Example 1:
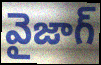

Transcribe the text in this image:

వైజాగ్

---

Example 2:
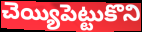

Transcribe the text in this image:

చెయ్యిపెట్టుకొని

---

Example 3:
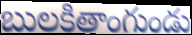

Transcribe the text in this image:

బులకితాంగుండు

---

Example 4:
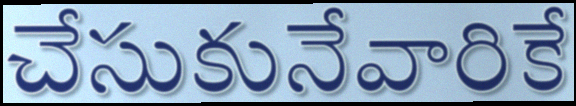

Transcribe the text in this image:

చేసుకునేవారికే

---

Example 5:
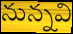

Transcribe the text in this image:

నున్నవి